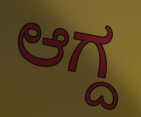
ಆಗ್ದ